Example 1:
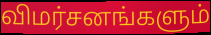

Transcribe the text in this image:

விமர்சனங்களும்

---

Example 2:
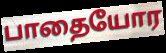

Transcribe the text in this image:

பாதையோர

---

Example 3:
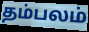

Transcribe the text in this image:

தம்பலம்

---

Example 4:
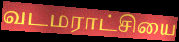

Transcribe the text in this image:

வடமராட்சியை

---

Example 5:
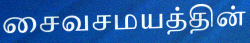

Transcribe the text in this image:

சைவசமயத்தின்